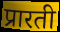
प्रारती